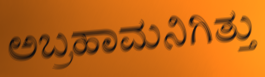
ಅಬ್ರಹಾಮನಿಗಿತ್ತು